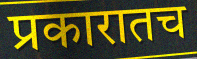
प्रकारातच